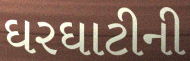
ઘરઘાટીની